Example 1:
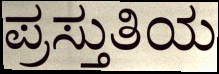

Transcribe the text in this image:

ಪ್ರಸ್ತುತಿಯ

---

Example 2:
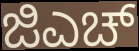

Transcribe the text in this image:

ಜಿಎಚ್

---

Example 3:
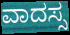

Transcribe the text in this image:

ವಾದಸ್ಸ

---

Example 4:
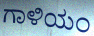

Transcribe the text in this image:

ಗಾಳಿಯಂ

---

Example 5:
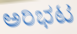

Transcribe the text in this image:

ಅರಿಭಟ